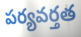
పర్యవర్తత